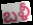
బళీ